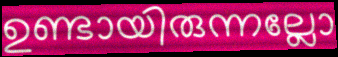
ഉണ്ടായിരുന്നല്ലോ